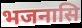
भजनासि